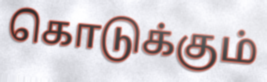
கொடுக்கும்